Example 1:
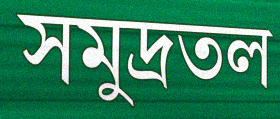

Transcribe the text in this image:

সমুদ্রতল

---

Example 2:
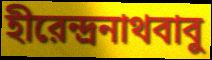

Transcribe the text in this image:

হীরেন্দ্রনাথবাবু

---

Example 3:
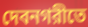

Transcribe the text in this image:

দেবনগরীতে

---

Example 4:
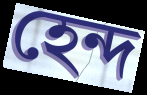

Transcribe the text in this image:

হেন্দ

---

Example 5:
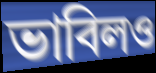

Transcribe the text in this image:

ভাবিলও